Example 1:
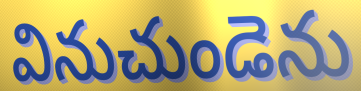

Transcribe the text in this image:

వినుచుండెను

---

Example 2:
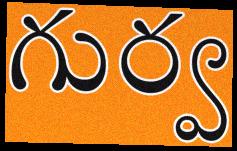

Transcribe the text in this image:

గుర్వ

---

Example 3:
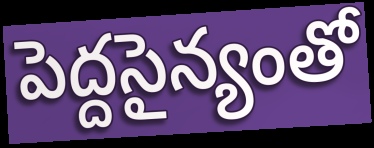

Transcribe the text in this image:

పెద్దసైన్యంతో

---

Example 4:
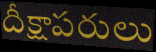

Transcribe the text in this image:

దీక్షాపరులు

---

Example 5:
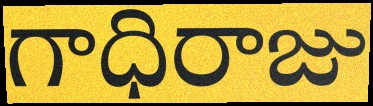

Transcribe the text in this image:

గాధిరాజు